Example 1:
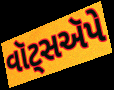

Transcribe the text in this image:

વૉટ્સઍપે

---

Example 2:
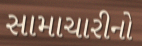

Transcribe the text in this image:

સામાચારીનો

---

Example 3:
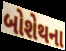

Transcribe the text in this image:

બોશેથના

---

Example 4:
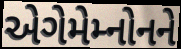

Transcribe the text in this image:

એગેમેમ્નોનને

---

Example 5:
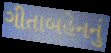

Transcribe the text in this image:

ગીતાબહેનનું